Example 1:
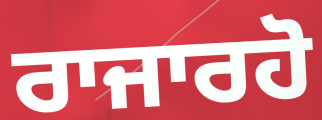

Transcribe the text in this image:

ਰਾਜਾਰਹੋ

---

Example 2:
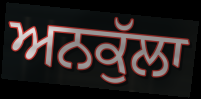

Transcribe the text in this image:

ਅਨਕੁੱਲਾ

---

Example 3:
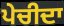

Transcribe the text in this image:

ਪੇਚੀਦਾ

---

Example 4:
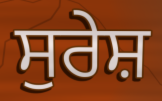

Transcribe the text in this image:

ਸੁਰੇਸ਼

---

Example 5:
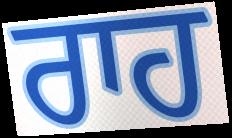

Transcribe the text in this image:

ਰਾਹ